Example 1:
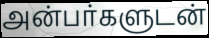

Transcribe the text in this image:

அன்பர்களுடன்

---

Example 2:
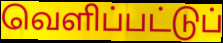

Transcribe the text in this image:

வெளிப்பட்டுப்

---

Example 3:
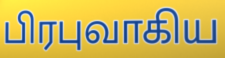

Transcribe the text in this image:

பிரபுவாகிய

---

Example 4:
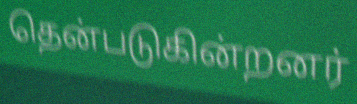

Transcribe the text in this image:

தென்படுகின்றனர்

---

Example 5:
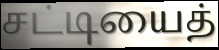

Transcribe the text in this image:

சட்டியைத்